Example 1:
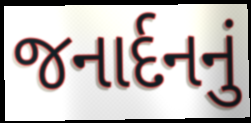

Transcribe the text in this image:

જનાર્દનનું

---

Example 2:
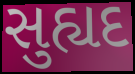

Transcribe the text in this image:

સુહ્યદ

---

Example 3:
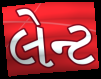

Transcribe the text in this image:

લેન્ટ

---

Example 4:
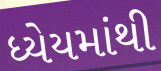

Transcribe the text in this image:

ધ્યેયમાંથી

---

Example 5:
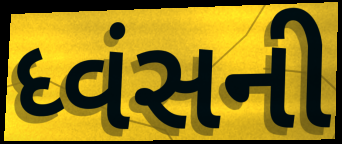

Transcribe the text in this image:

ધ્વંસની